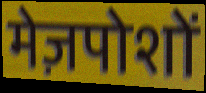
मेज़पोशों